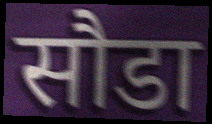
सौडा